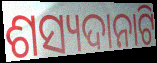
ଶସ୍ୟଦାନାଟି